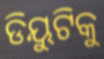
ଡିୟୁଟିକୁ